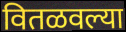
वितळवल्या